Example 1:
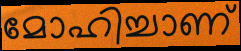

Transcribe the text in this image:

മോഹിച്ചാണ്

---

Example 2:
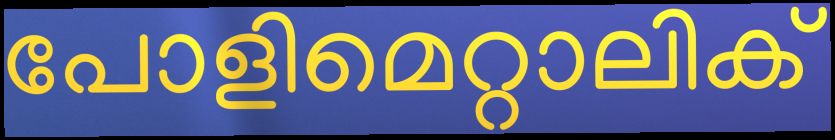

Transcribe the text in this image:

പോളിമെറ്റാലിക്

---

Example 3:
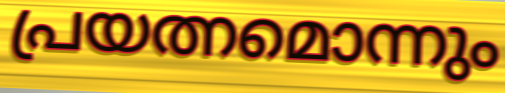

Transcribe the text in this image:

പ്രയത്നമൊന്നും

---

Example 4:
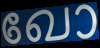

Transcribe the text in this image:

ഖോ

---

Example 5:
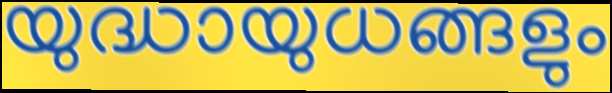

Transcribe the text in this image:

യുദ്ധായുധങ്ങളും